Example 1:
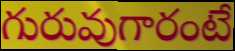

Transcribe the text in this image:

గురువుగారంటే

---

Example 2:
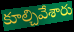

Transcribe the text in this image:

కూల్చివేశారు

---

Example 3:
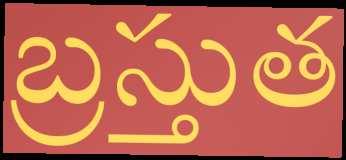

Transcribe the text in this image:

బ్రస్తుత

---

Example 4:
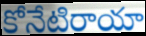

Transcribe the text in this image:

కోనేటిరాయా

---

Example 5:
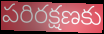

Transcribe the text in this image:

పరిరక్షణకు